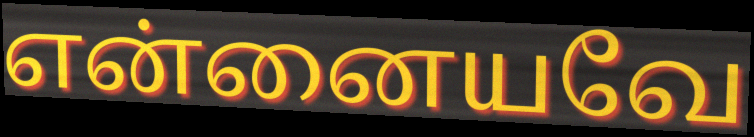
என்னையவே